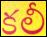
కలీ